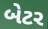
બેટર